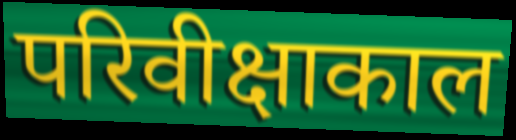
परिवीक्षाकाल